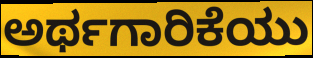
ಅರ್ಥಗಾರಿಕೆಯು